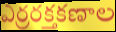
ఎర్రరక్తకణాల